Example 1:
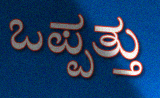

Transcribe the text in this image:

ಒಪ್ಪತ್ತು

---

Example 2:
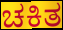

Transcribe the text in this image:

ಚಕಿತ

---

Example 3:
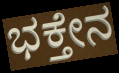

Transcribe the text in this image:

ಭಕ್ತೇನ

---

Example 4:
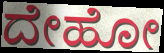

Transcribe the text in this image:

ದೇಹೋ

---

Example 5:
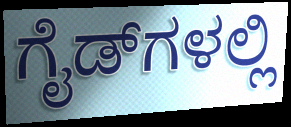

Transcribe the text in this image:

ಗೈಡ್‌ಗಳಲ್ಲಿ